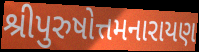
શ્રીપુરુષોત્તમનારાયણ